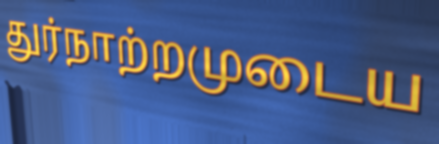
துர்நாற்றமுடைய